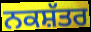
ਨਕਸ਼ੱਤਰ